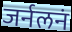
जर्नलनं